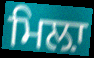
ਮਿਲ਼ਾ